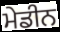
ਮੇਡੀਨ